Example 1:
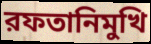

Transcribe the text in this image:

রফতানিমুখি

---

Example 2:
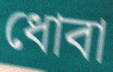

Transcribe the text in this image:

ধোবা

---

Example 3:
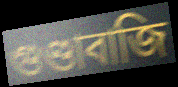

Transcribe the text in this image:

গুণ্ডাবাজি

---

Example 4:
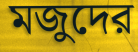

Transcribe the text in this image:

মজুদের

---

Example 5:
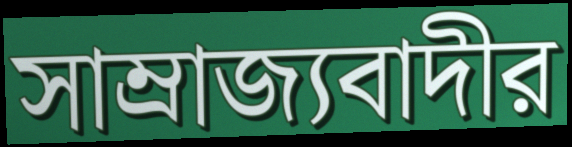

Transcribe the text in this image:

সাম্রাজ্যবাদীর